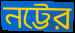
নট্টের